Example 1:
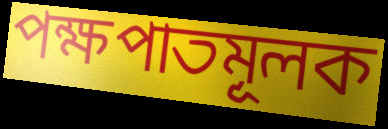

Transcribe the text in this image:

পক্ষপাতমূলক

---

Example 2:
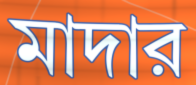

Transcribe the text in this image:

মাদার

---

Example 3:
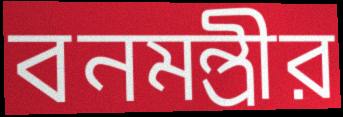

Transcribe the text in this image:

বনমন্ত্রীর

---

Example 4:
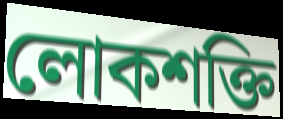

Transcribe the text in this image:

লোকশক্তি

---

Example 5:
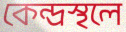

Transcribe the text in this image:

কেন্দ্রস্থলে